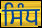
ਸਿੰਧ